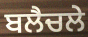
ਬਲੈਚਲੇ